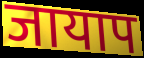
जायाप